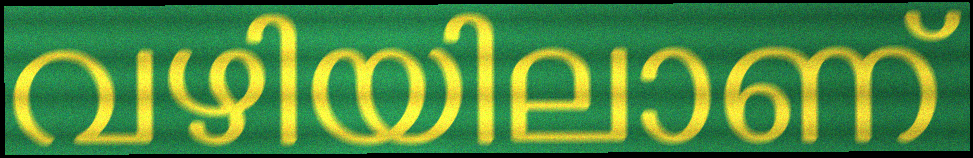
വഴിയിലാണ്